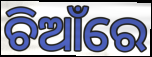
ଚିଆଁରେ